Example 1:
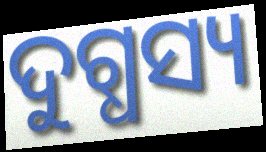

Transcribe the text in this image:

ଦୁଗ୍ଧସ୍ୟ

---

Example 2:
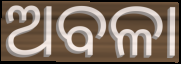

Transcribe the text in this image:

ଅବଳା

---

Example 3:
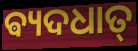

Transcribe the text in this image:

ଵ୍ୟଦଧାତ୍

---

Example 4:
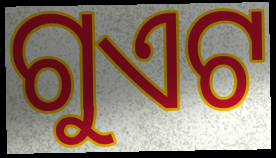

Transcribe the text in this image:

ଗୁଏଟ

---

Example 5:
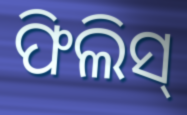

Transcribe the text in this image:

ଫିଲିସ୍